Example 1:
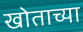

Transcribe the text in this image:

खोताच्या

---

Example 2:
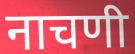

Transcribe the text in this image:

नाचणी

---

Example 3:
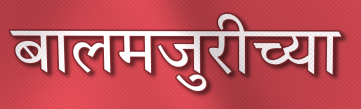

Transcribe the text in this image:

बालमजुरीच्या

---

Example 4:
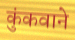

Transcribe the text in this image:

कुंकवाने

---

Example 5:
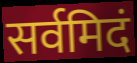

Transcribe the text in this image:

सर्वमिदं